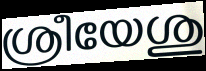
ശ്രീയേശു